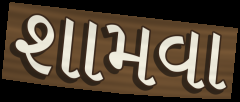
શામવા